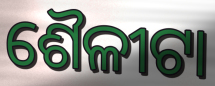
ଶୈଳୀଟା